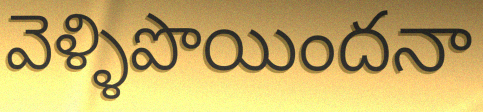
వెళ్ళిపొయిందనా